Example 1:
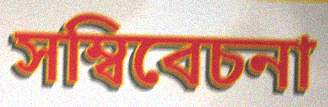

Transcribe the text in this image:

সম্বিবেচনা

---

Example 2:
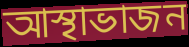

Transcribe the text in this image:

আস্থাভাজন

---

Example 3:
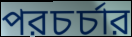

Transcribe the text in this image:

পরচর্চার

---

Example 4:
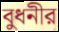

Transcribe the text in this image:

বুধনীর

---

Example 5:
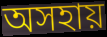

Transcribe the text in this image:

অসহায়